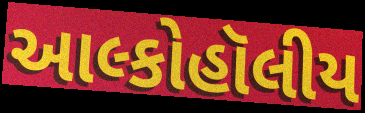
આલ્કોહૉલીય